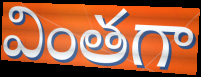
వింతగా